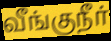
வீங்குநீர்